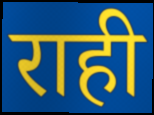
राही